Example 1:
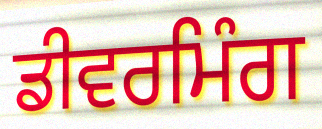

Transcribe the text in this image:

ਡੀਵਰਮਿੰਗ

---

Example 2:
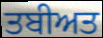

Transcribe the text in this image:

ਤਬੀਅਤ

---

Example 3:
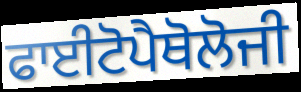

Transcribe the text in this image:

ਫਾਈਟੋਪੈਥੋਲੋਜੀ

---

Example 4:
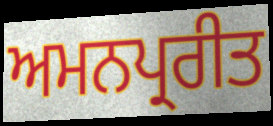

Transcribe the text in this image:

ਅਮਨਪ੍ਰਰੀਤ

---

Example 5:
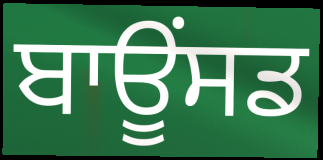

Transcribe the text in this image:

ਬਾਊਂਸਡ